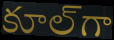
కూల్‌గా